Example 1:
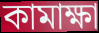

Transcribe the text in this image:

কামাক্ষা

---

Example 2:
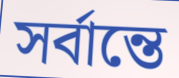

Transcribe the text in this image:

সর্বান্তে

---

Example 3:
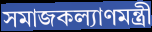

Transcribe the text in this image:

সমাজকল্যাণমন্ত্রী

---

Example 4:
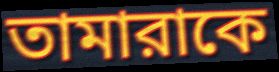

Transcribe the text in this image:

তামারাকে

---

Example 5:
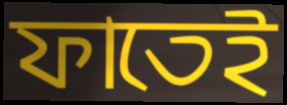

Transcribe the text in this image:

ফাতেই